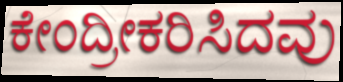
ಕೇಂದ್ರೀಕರಿಸಿದವು